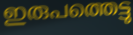
ഇരുപത്തെട്ടു